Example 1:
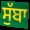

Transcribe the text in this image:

ਸੁੱਬਾ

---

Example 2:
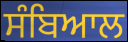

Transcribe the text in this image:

ਸੰਬਿਆਲ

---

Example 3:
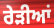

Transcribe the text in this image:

ਰੇੜੀਆਂ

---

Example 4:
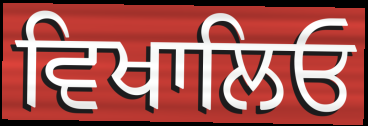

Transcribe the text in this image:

ਵਿਖਾਲਿਓ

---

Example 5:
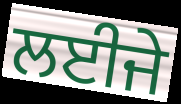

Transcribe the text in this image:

ਲਈਜੇ